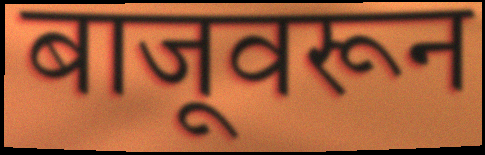
बाजूवरून